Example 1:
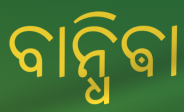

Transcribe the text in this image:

ବାନ୍ଧିଵା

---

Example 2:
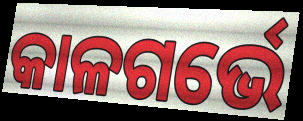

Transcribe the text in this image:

କାଳଗର୍ଭେ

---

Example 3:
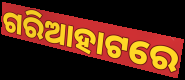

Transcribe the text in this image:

ଗରିଆହାଟରେ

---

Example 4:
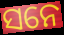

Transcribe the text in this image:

ସନେ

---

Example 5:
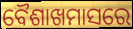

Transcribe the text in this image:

ବୈଶାଖମାସରେ